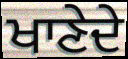
ਖਾਣੇਦੇ